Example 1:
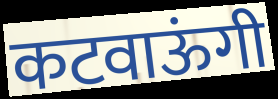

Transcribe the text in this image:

कटवाऊंगी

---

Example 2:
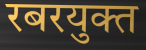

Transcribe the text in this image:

रबरयुक्त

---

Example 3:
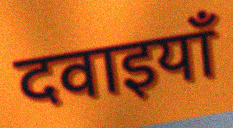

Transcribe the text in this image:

दवाइयाँ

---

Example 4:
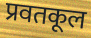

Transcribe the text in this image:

प्रवतकूल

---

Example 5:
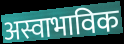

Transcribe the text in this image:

अस्वाभाविक